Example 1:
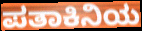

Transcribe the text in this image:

ಪತಾಕಿನಿಯ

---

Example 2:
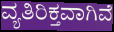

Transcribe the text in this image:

ವ್ಯತಿರಿಕ್ತವಾಗಿವೆ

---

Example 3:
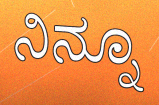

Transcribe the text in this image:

ನಿನ್ನೂ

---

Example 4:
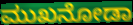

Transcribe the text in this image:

ಮುಖನೋಡಾ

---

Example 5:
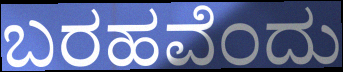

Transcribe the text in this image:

ಬರಹವೆಂದು